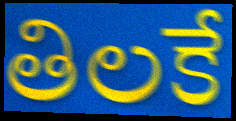
తిలకే